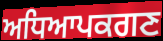
ਅਧਿਆਪਕਗਣ